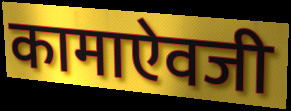
कामाऐवजी